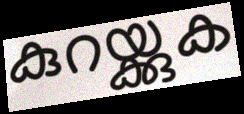
കുറയ്ക്കുക